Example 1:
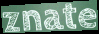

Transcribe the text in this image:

znate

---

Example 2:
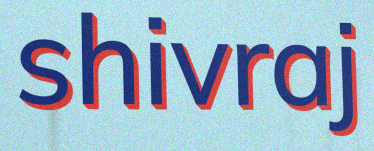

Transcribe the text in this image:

shivraj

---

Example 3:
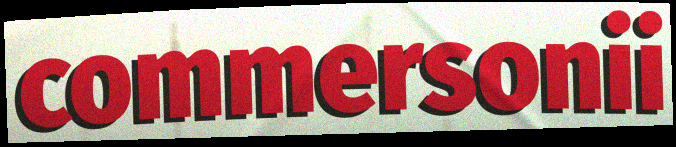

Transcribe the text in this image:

commersonii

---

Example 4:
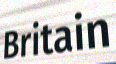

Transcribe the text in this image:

Britain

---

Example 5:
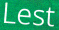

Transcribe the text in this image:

Lest